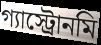
গ্যাস্ট্রোনমি